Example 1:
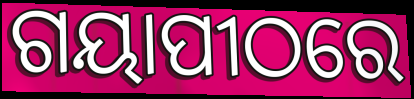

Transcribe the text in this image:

ଗୟାପୀଠରେ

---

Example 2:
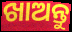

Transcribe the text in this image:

ଖାଅନ୍ତୁ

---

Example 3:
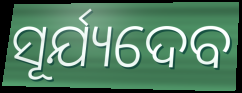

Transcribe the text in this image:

ସୂର୍ଯ୍ୟଦେବ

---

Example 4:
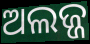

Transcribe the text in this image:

ଅଲଜ୍ଜ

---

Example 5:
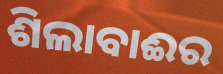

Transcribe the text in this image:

ଶିଲାବାଈର